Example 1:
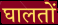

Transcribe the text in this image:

घालतों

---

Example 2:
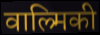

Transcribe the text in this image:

वाल्मिकी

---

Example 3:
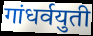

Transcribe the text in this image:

गांधर्वयुती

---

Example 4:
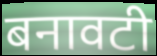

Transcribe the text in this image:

बनावटी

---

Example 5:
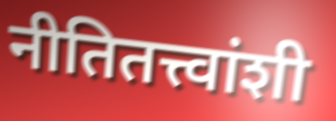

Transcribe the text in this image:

नीतितत्त्वांशी